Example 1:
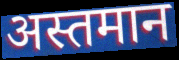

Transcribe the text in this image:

अस्तमान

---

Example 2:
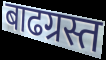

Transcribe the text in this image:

बाढग्रस्त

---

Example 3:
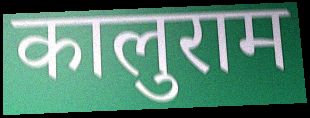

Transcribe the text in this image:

कालुराम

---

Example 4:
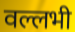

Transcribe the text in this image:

वल्लभी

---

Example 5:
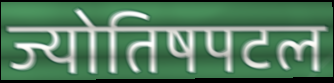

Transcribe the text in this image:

ज्योतिषपटल